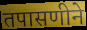
तपासणीने